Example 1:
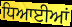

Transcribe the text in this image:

ਧਿਆਈਆਂ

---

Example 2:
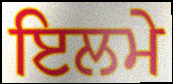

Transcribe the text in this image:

ਇਲਮੇ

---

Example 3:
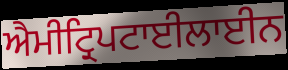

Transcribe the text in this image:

ਐਮੀਟ੍ਰਿਪਟਾਈਲਾਈਨ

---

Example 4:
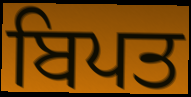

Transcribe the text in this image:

ਬਿਪਤ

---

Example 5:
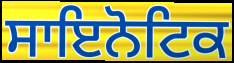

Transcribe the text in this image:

ਸਾਇਨੋਟਿਕ